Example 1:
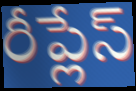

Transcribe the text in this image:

రీప్లేస్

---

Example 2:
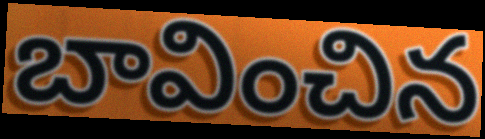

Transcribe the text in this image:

బావించిన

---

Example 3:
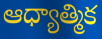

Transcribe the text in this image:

ఆధ్యాత్మిక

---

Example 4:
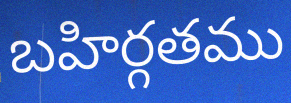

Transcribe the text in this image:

బహిర్గతము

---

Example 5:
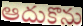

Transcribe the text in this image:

ఆదుకొను